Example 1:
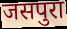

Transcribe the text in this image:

जसपुरा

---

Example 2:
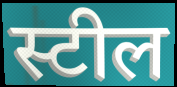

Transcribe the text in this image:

स्‍टील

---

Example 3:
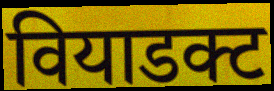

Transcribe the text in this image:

वियाडक्ट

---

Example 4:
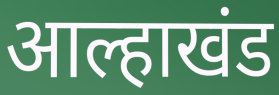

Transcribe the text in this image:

आल्हाखंड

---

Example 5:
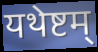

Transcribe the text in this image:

यथेष्टम्